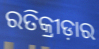
ରତିକ୍ରୀଡ଼ାର